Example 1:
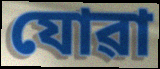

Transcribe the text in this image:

যোৱা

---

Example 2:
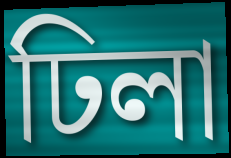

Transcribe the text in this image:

ঢিলা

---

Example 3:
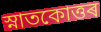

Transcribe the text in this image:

স্নাতকোত্তৰ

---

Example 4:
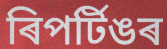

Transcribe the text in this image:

ৰিপৰ্টিঙৰ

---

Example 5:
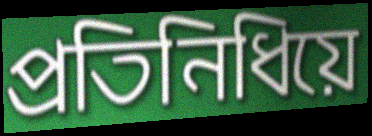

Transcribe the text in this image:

প্ৰতিনিধিয়ে